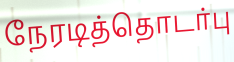
நேரடித்தொடர்பு